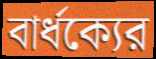
বার্ধক্যের